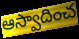
ఆస్వాదించ